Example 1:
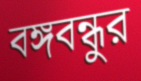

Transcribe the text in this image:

বঙ্গবন্ধুর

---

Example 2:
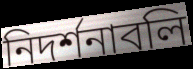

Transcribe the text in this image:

নিদর্শনাবলি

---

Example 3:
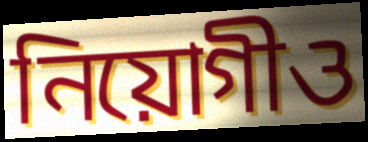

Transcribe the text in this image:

নিয়োগীও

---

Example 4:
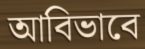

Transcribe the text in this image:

আবিভাবে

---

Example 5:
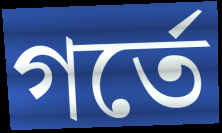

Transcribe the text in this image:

গর্তে